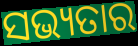
ସଭ୍ୟତାର